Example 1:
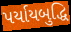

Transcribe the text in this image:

પર્યાયબુદ્ધિ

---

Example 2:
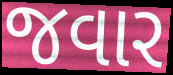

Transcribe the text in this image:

જવાર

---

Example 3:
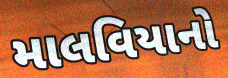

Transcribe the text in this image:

માલવિયાનો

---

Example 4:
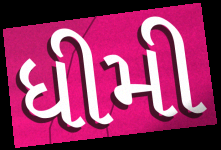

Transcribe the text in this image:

ધીમી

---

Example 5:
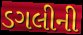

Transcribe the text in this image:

ડગલીની